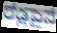
రోడ్లపైనే